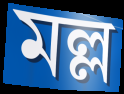
মল্ল